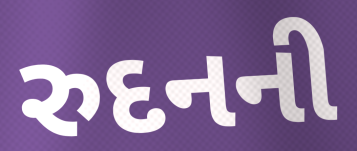
રુદનની